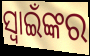
ସ୍ୱାଇଁଙ୍କର